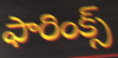
ఫారింక్స్